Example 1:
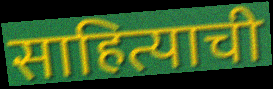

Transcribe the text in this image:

साहित्याची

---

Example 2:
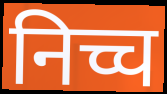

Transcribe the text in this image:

निच्च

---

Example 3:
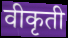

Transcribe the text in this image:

वीकृती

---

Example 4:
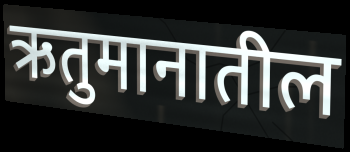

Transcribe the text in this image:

ऋतुमानातील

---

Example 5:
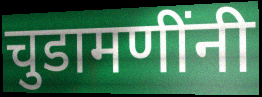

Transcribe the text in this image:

चुडामणींनी